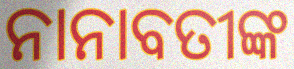
ନାନାବତୀଙ୍କ